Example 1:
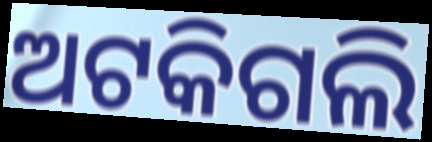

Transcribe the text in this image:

ଅଟକିଗଲି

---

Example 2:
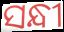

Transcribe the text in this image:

ସନ୍ଧୀ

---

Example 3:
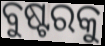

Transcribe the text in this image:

ବୁଷ୍ଟରକୁ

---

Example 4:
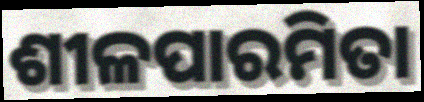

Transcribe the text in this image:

ଶୀଳପାରମିତା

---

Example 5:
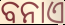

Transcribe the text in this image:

ବନାଏ